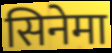
सिनेमा